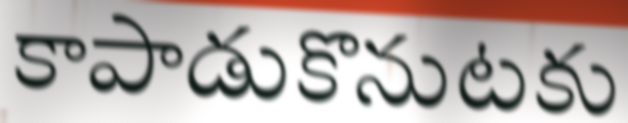
కాపాడుకొనుటకు